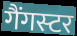
गैंगस्‍टर